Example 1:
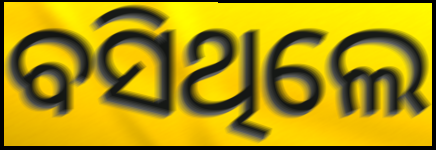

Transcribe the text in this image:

ବସିଥିଲେ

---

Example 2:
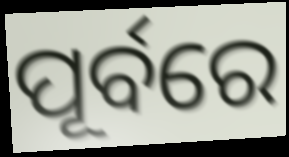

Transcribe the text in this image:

ପୂର୍ବରେ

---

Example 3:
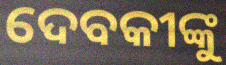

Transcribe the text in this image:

ଦେବକୀଙ୍କୁ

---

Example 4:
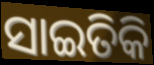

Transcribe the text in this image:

ସାଇତିକି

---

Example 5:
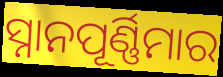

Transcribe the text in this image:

ସ୍ନାନପୂର୍ଣ୍ଣିମାର